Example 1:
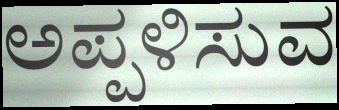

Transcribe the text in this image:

ಅಪ್ಪಳಿಸುವ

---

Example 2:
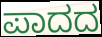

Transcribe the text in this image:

ಪಾದದ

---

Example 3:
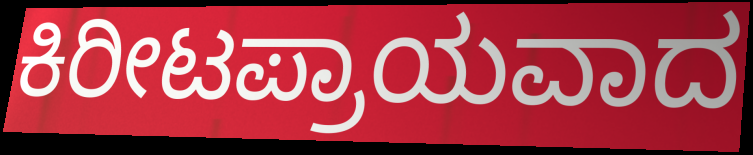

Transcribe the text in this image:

ಕಿರೀಟಪ್ರಾಯವಾದ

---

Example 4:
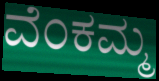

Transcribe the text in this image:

ವೆಂಕಮ್ಮ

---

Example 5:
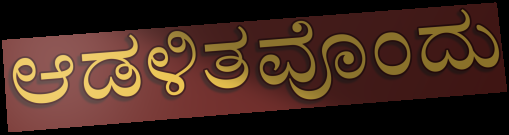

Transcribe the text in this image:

ಆಡಳಿತವೊಂದು